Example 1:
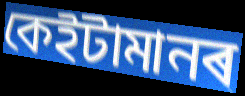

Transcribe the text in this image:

কেইটামানৰ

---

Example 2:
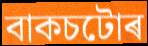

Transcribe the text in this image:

বাকচটোৰ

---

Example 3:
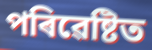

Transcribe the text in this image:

পৰিৱেষ্টিত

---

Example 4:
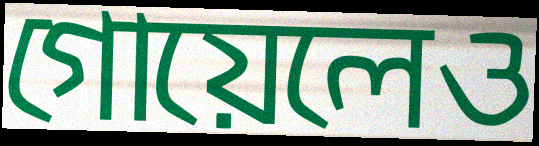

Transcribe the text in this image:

গোয়েলেও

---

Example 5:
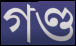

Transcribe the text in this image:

গণ্ড